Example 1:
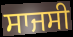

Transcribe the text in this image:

ਸਾਜਸੀ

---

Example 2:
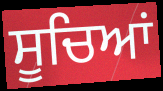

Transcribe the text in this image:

ਸੂਚਿਆਂ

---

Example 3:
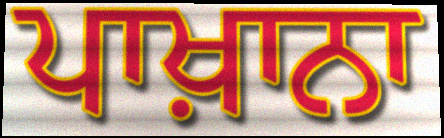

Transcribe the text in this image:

ਪਾਖ਼ਾਨਾ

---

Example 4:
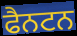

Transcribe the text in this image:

ਫੈਨਟਨ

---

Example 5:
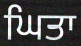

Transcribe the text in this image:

ਘਿਤਾ